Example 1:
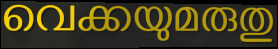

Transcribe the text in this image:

വെക്കയുമരുതു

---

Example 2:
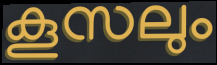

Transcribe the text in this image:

കൂസലും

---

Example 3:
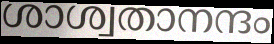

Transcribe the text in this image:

ശാശ്വതാനന്ദം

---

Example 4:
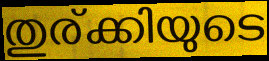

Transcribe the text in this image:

തുര്ക്കിയുടെ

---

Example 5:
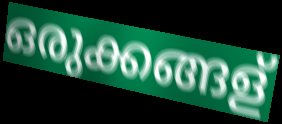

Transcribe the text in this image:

ഒരുക്കങ്ങള്